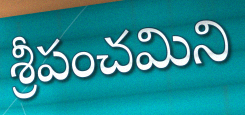
శ్రీపంచమిని